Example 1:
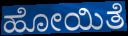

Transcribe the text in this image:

ಹೋಯಿತೆ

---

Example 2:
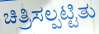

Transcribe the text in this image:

ಚಿತ್ರಿಸಲ್ಪಟ್ಟಿತು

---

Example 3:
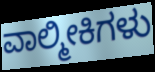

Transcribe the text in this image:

ವಾಲ್ಮೀಕಿಗಳು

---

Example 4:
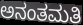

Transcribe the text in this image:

ಅನಂತಮತಿ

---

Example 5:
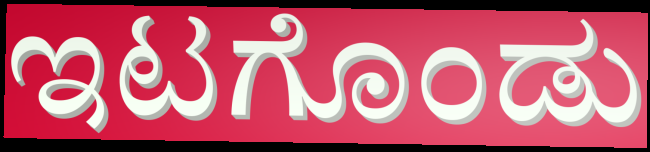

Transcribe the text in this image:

ಇಟಗೊಂಡು